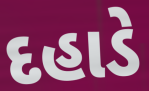
દહાડે